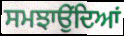
ਸਮਝਾਉਂਦਿਆਂ